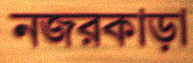
নজরকাড়া